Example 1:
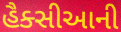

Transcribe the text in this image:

હૈક્સીઆની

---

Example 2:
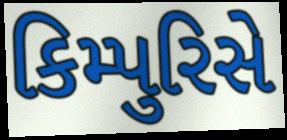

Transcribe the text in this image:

કિમ્પુરિસે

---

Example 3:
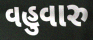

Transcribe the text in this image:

વહુવારુ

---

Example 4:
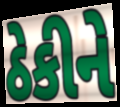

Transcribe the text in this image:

ઠેકીને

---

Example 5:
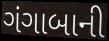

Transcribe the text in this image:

ગંગાબાની